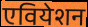
एवियेशन